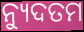
ନ୍ୟୁଦତମ